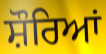
ਸ਼ੌਰਿਆਂ